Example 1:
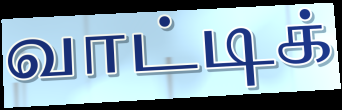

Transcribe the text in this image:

வாட்டிக்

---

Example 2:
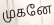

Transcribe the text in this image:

முகனே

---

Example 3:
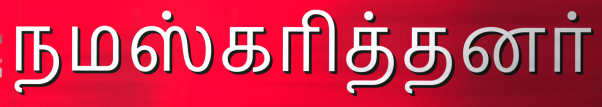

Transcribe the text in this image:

நமஸ்கரித்தனர்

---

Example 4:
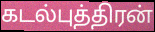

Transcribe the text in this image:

கடல்புத்திரன்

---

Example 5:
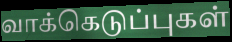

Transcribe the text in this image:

வாக்கெடுப்புகள்